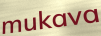
mukava